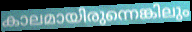
കാലമായിരുന്നെങ്കിലും